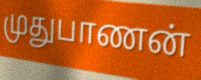
முதுபாணன்